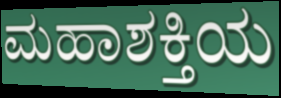
ಮಹಾಶಕ್ತಿಯ